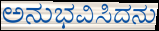
ಅನುಭವಿಸಿದನು